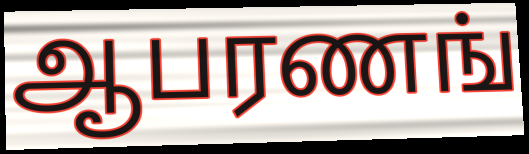
ஆபரணங்